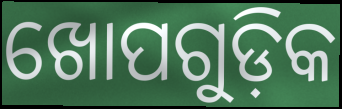
ଖୋପଗୁଡ଼ିକ